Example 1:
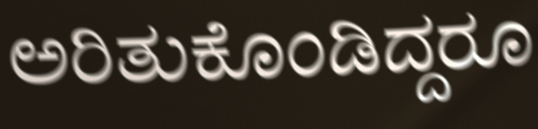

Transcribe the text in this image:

ಅರಿತುಕೊಂಡಿದ್ದರೂ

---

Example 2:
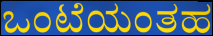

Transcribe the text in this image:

ಒಂಟೆಯಂತಹ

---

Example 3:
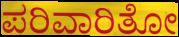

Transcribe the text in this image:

ಪರಿವಾರಿತೋ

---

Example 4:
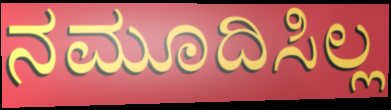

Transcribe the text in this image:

ನಮೂದಿಸಿಲ್ಲ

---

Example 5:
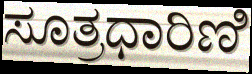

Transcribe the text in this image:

ಸೂತ್ರಧಾರಿಣಿ